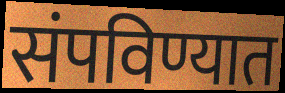
संपविण्यात